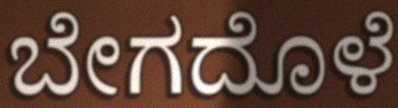
ಬೇಗದೊಳೆ